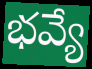
భవ్యే